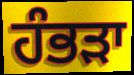
ਹੰਭੜਾ